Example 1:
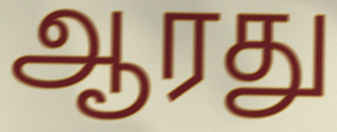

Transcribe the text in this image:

ஆரது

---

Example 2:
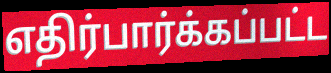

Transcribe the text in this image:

எதிர்பார்க்கப்பட்ட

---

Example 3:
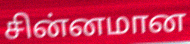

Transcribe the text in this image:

சின்னமான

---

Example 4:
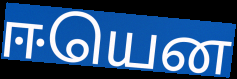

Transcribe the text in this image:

ஈயென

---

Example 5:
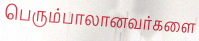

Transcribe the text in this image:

பெரும்பாலானவர்களை